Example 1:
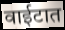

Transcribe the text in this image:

वाईटात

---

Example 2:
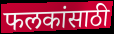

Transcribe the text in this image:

फलकांसाठी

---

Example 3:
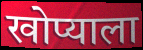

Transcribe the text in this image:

खोप्याला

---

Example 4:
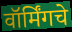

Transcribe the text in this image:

वॉर्मिंगचे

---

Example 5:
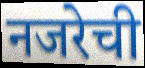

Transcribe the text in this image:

नजरेची